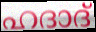
ഹദാദ്